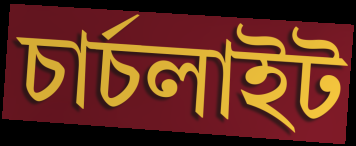
চাৰ্চলাইট